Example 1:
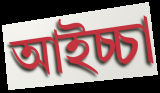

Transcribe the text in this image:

আইচ্চা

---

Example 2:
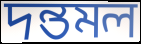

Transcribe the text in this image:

দন্তমল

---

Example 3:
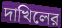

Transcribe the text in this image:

দাখিলের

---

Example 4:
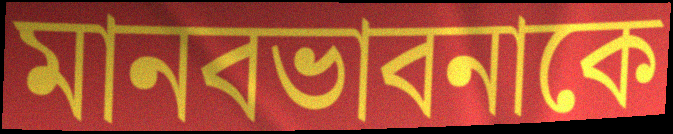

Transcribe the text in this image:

মানবভাবনাকে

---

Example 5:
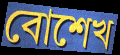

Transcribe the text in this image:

বোশেখ